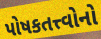
પોષકતત્ત્વોનો